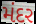
મંદર